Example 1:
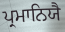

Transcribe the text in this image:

ਪ੍ਰਮਾਨਿਯੈ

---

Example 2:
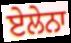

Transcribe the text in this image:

ਏਲੇਨਾ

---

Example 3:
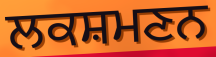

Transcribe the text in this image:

ਲਕਸ਼ਮਣਨ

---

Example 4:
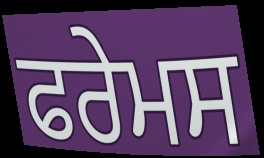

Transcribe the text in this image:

ਫਰੇਮਸ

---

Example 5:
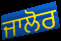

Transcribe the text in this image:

ਜਾਲੋਰ